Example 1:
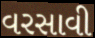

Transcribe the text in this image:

વરસાવી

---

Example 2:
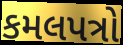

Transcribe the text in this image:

કમલપત્રો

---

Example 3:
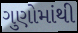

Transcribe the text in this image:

ગુણોમાંથી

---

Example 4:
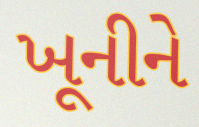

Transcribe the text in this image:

ખૂનીને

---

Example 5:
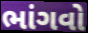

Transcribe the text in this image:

ભાંગવો